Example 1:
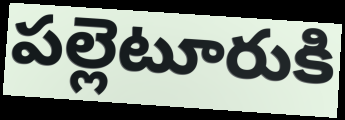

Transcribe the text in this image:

పల్లెటూరుకి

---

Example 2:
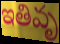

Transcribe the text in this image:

ఇతివృ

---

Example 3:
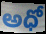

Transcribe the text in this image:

అధో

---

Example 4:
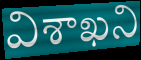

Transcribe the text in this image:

విశాఖని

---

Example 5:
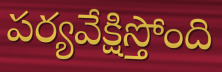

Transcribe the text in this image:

పర్యవేక్షిస్తోంది